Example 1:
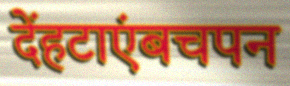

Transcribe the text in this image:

देंहटाएंबचपन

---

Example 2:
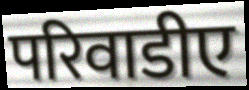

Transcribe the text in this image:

परिवाडीए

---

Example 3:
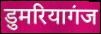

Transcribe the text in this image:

डुमरियागंज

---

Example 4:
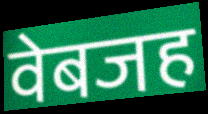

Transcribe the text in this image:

वेबजह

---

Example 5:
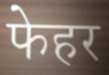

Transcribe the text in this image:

फेहर